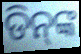
ଡିନ୍‍ଙ୍କ